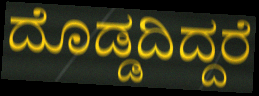
ದೊಡ್ಡದಿದ್ದರೆ